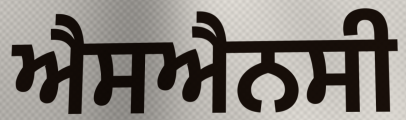
ਐਸਐਨਸੀ